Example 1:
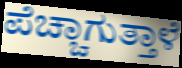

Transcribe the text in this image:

ಪೆಚ್ಚಾಗುತ್ತಾಳೆ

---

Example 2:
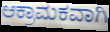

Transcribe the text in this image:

ಆಕ್ರಾಮಕವಾಗಿ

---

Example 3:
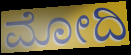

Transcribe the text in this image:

ಮೋದಿ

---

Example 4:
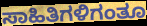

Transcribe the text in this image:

ಸಾಹಿತಿಗಳಿಗಂತೂ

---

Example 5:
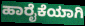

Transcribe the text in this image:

ಹಾರೈಕೆಯಾಗಿ